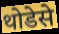
थोडेसे